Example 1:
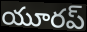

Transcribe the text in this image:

యూరప్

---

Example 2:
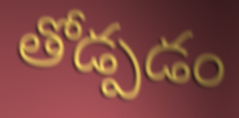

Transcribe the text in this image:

తోడ్పడం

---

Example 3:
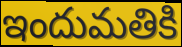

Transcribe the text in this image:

ఇందుమతికి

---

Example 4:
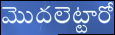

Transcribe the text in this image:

మొదలెట్టారో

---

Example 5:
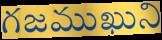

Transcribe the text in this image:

గజముఖుని